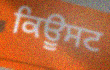
ਕਿਊਸਟ